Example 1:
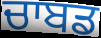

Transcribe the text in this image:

ਚਾਬਡ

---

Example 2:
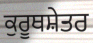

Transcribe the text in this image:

ਕੁਰੂਥਸ਼ੇਤਰ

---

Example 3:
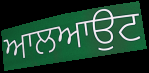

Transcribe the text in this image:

ਆਲਆਉਟ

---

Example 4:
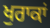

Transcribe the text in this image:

ਖੁਰਾਕਾਂ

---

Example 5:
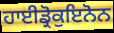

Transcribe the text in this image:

ਹਾਈਡ੍ਰੋਕੁਇਨੋਨ